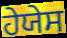
ਹੇਯੇਸ